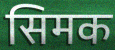
सिमक